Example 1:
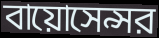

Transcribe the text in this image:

বায়োসেন্সর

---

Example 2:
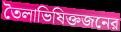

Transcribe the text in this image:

তৈলাভিষিক্তজনের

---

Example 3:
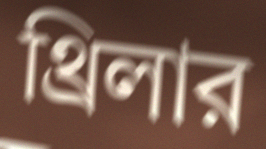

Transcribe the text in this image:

থ্রিলার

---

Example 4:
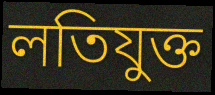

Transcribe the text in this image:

লতিযুক্ত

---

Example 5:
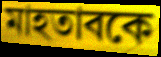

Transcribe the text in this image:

মাহতাবকে